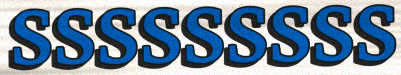
sssssssss